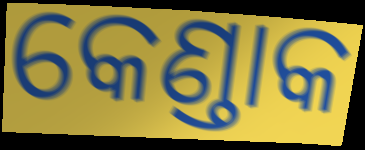
କେଣ୍ଡାକ